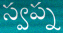
స్వప్న